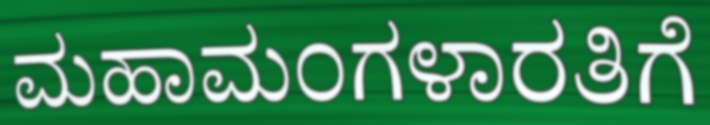
ಮಹಾಮಂಗಳಾರತಿಗೆ